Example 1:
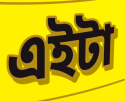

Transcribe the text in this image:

এইটা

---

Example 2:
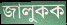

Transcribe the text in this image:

জালুকক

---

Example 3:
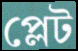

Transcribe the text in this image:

প্লেট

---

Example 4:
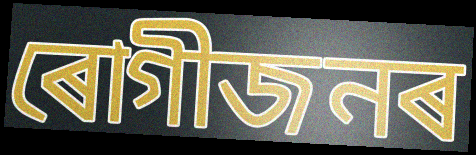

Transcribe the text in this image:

ৰোগীজনৰ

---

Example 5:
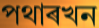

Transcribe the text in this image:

পথাৰখন